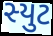
સ્યુટ